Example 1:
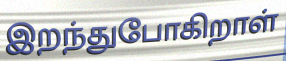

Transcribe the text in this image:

இறந்துபோகிறாள்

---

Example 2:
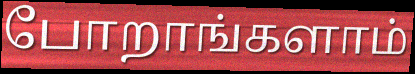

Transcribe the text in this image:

போறாங்களாம்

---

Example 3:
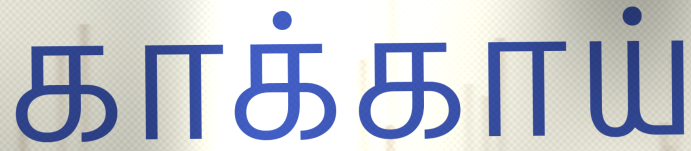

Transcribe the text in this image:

காக்காய்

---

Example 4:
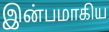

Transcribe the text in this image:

இன்பமாகிய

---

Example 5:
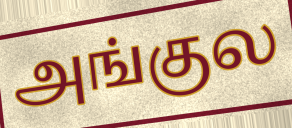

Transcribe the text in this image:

அங்குல